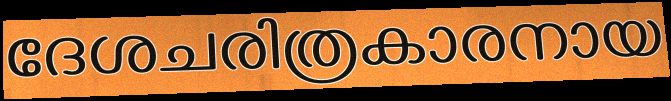
ദേശചരിത്രകാരനായ